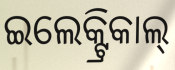
ଇଲେକ୍ଟ୍ରିକାଲ୍